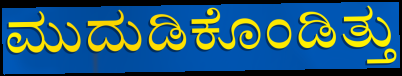
ಮುದುಡಿಕೊಂಡಿತ್ತು